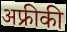
अफ्रीकी